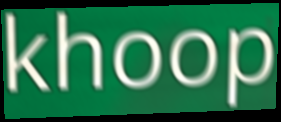
khoop